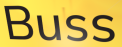
Buss